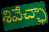
శివేచ్ఛా